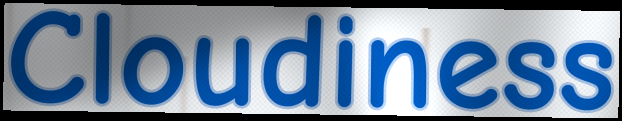
Cloudiness